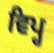
ਵਿਪ੍ਹ